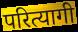
परित्यागी